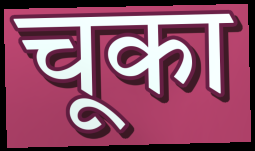
चूका